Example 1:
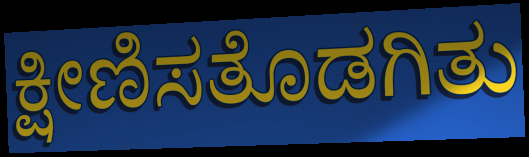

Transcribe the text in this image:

ಕ್ಷೀಣಿಸತೊಡಗಿತು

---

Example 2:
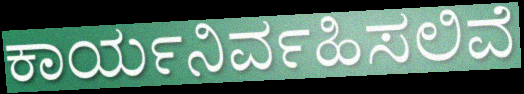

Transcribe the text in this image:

ಕಾರ್ಯನಿರ್ವಹಿಸಲಿವೆ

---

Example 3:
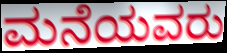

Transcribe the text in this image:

ಮನೆಯವರು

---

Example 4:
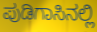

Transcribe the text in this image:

ಪುಡಿಗಾಸಿನಲ್ಲಿ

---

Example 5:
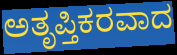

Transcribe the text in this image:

ಅತೃಪ್ತಿಕರವಾದ